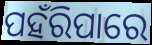
ପହଁରିପାରେ